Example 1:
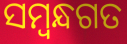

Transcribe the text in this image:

ସମ୍ବନ୍ଧଗତ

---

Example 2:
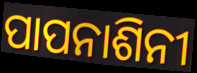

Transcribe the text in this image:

ପାପନାଶିନୀ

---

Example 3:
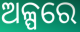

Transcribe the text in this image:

ଅଳ୍ପରେ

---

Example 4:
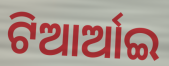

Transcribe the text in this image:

ଟିଆର୍ଆଇ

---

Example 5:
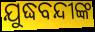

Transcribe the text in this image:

ଯୁଦ୍ଧବନ୍ଦୀଙ୍କ